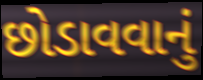
છોડાવવાનું